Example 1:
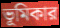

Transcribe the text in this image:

ভূমিকার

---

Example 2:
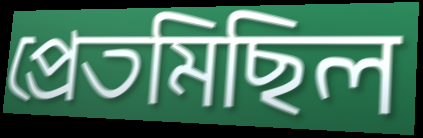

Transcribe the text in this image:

প্রেতমিছিল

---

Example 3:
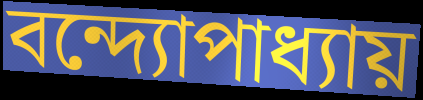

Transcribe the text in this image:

বন্দ্যোপাধ্যায়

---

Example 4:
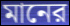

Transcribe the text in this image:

মানের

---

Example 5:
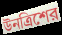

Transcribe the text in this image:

উনত্রিশের